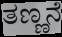
ತಣ್ಣನೆ